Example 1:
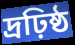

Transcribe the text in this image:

দ্রঢ়িষ্ঠ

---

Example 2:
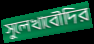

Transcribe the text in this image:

সুলেখাবৌদির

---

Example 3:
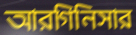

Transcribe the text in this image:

আরগিনিসার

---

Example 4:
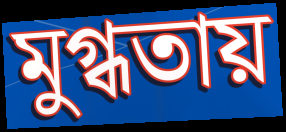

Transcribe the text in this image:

মুগ্ধতায়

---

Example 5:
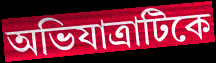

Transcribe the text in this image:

অভিযাত্রাটিকে